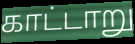
காட்டாறு